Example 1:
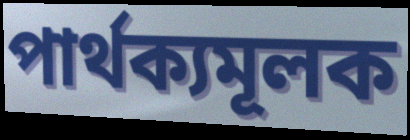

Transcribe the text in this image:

পার্থক্যমূলক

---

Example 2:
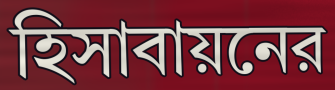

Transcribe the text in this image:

হিসাবায়নের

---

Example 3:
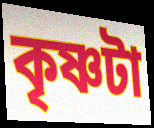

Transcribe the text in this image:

কৃষ্ণটা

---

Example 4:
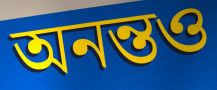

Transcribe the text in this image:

অনন্তও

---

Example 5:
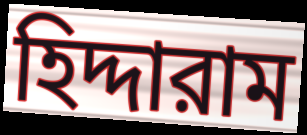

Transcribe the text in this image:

হিদ্দারাম